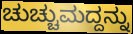
ಚುಚ್ಚುಮದ್ದನ್ನು